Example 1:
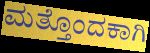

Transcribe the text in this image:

ಮತ್ತೊಂದಕಾಗಿ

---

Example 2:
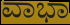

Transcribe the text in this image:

ವಾಭಾ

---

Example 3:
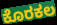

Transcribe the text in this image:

ಕೊರಕಲ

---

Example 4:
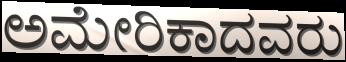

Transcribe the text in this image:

ಅಮೇರಿಕಾದವರು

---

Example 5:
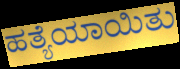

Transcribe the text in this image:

ಹತ್ಯೆಯಾಯಿತು